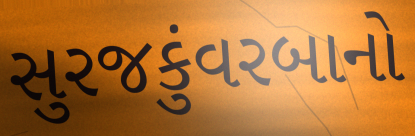
સુરજકુંવરબાનો